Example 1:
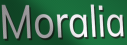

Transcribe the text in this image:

Moralia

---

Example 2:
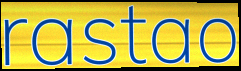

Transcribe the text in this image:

rastao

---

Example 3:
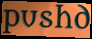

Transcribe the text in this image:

pushd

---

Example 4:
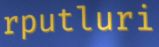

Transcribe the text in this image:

rputluri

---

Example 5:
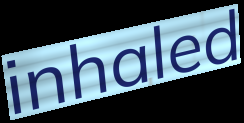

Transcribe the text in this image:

inhaled